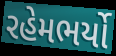
રહેમભર્યો